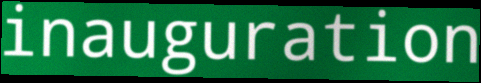
inauguration